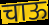
चाऊ